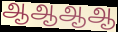
ஆஆஆஆ